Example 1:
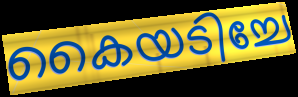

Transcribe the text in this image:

കൈയടിച്ചേ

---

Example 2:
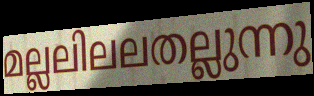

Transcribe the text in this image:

മല്ലലിലലതല്ലുന്നു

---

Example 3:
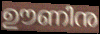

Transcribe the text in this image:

ഊണിനു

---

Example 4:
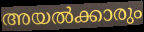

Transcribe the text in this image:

അയൽക്കാരും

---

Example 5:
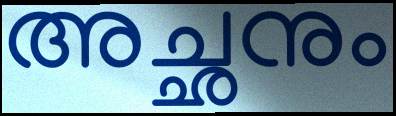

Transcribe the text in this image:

അച്ഛനും